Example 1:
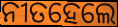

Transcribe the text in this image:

ନୀତହେଲେ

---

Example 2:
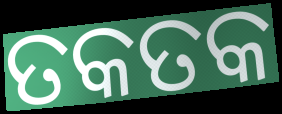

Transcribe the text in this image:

ତକତକ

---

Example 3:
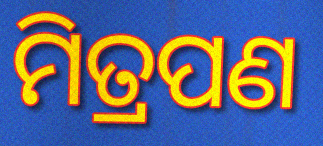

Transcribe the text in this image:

ମିତ୍ରପଣ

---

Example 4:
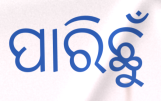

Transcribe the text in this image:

ପାରିଛୁଁ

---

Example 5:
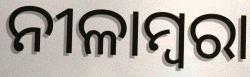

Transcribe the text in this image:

ନୀଳାମ୍ବରା